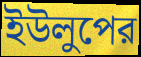
ইউলুপের